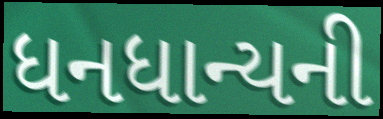
ધનધાન્યની